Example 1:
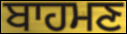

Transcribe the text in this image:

ਬਾਹਮਣ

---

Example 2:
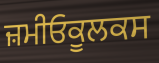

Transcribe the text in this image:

ਜ਼ਮੀਓਕੂਲਕਸ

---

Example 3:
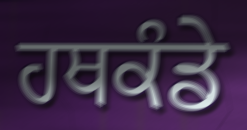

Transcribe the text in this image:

ਹਥਕੰਡੇ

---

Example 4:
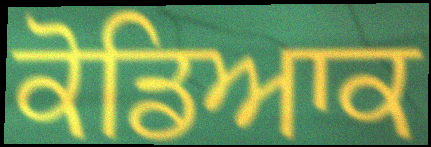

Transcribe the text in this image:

ਕੋਡਿਆਕ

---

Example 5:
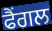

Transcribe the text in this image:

ਫੈਂਗਲ